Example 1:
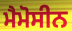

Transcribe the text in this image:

ਮੈਮੋਸੀਨ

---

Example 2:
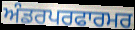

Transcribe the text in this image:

ਅੰਡਰਪਰਫਾਰਮਰ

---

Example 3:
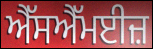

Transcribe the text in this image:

ਐੱਸਐੱਮਈਜ਼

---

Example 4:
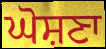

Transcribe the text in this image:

ਘੋਸ਼ਣਾ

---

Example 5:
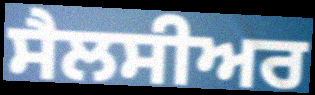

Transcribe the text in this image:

ਸੈਲਸੀਅਰ